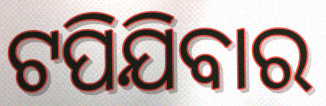
ଟପିଯିବାର